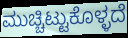
ಮುಚ್ಚಿಟ್ಟುಕೊಳ್ಳದೆ